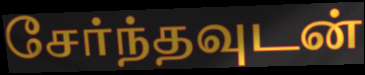
சேர்ந்தவுடன்